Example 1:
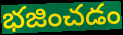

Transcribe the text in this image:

భజించడం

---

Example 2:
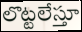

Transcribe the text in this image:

లొట్టలేస్తూ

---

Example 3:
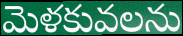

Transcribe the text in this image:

మెళకువలను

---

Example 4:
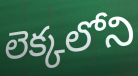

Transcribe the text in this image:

లెక్కలోని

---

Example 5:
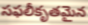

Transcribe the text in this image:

సఫలీకృతమైన